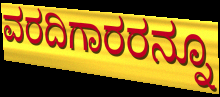
ವರದಿಗಾರರನ್ನೂ